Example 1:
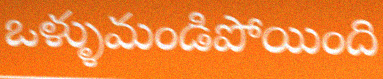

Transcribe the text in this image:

ఒళ్ళుమండిపోయింది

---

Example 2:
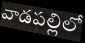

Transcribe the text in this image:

వాడపల్లిలో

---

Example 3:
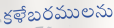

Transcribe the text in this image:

కళేబరములను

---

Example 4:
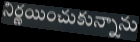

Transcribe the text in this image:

నిర్ణయించుకున్నాను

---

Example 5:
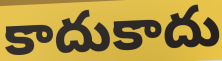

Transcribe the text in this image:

కాదుకాదు